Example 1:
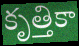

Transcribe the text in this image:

కృత్తికా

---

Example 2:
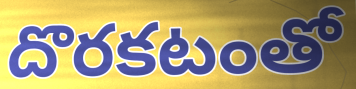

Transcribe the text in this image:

దొరకటంతో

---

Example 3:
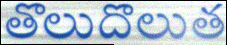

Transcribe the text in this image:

తొలుదొలుత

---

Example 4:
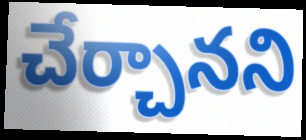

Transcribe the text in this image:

చేర్చానని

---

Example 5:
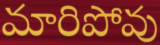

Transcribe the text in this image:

మారిపోవు